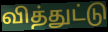
வித்துட்டு